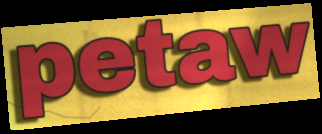
petaw